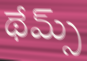
థేమ్స్